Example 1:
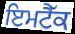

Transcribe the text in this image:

ਇਮਟੈੱਕ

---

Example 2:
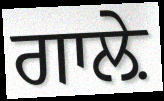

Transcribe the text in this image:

ਗਾਲ਼ੇ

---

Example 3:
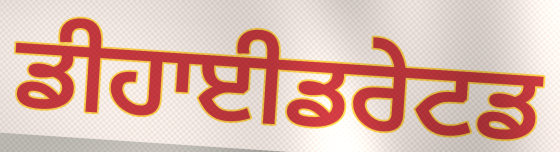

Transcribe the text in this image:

ਡੀਹਾਈਡਰੇਟਡ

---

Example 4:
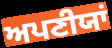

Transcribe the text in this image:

ਅਪਣੀਯਾਂ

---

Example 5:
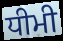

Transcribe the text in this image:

ਧੀਮੀ